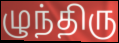
ழுந்திரு